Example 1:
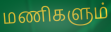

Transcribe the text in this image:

மணிகளும்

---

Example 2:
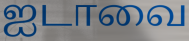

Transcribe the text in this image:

ஐடாவை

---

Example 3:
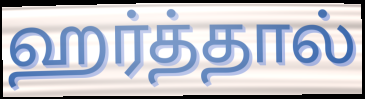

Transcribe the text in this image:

ஹர்த்தால்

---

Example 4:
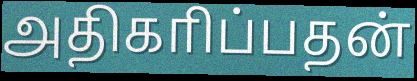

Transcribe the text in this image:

அதிகரிப்பதன்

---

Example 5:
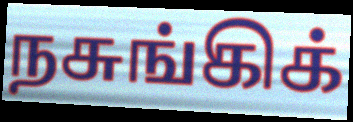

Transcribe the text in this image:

நசுங்கிக்